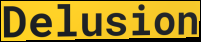
Delusion